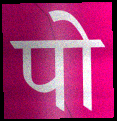
पो